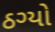
ઠગ્યો